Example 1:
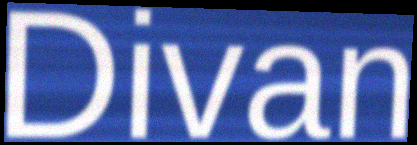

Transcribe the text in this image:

Divan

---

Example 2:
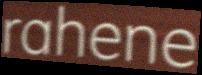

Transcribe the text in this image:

rahene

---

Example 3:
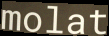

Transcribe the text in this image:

molat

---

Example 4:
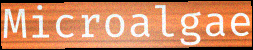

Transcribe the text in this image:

Microalgae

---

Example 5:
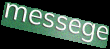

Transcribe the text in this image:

messege